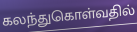
கலந்துகொள்வதில்